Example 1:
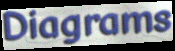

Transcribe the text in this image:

Diagrams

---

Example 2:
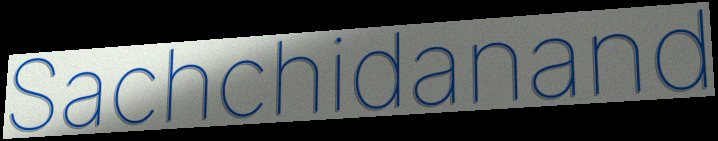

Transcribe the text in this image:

Sachchidanand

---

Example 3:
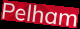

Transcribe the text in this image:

Pelham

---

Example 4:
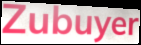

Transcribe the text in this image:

Zubuyer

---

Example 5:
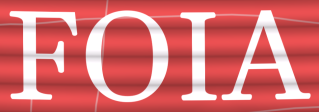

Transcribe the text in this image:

FOIA